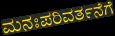
ಮನಃಪರಿವರ್ತನೆಗೆ